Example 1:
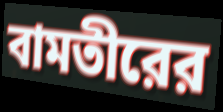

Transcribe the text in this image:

বামতীরের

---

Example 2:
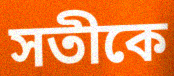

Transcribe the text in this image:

সতীকে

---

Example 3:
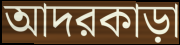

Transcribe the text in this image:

আদরকাড়া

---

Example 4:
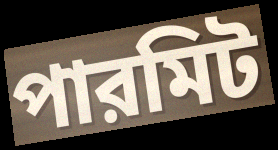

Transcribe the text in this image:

পারমিট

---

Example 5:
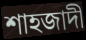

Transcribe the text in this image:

শাহজাদী